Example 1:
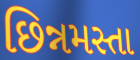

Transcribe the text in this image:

છિન્નમસ્તા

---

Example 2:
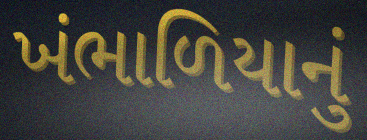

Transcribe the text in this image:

ખંભાળિયાનું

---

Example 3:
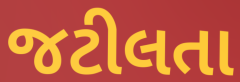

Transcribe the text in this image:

જટીલતા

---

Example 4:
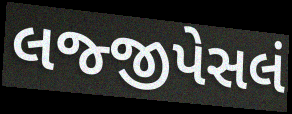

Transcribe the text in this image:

લજ્જીપેસલં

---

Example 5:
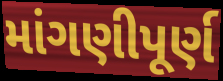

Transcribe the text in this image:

માંગણીપૂર્ણ